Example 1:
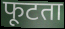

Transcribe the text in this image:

फूटता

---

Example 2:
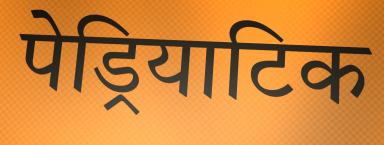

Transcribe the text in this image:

पेड्रियाटिक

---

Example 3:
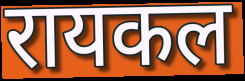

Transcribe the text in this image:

रायकल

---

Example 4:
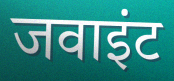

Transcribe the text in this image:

जवाइंट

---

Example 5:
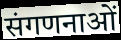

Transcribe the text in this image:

संगणनाओं